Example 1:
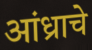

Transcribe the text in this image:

आंध्राचे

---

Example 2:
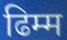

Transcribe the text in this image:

ढिम्म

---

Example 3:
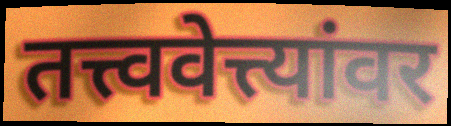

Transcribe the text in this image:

तत्त्ववेत्त्यांवर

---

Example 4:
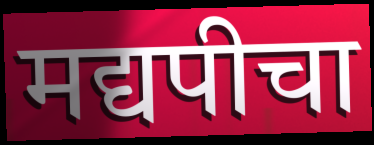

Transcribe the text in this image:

मद्यपीचा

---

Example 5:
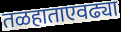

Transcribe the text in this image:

तळहाताएवढ्या